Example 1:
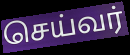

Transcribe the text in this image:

செய்வர்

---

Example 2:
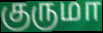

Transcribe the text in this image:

குருமா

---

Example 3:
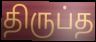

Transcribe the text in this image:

திருப்த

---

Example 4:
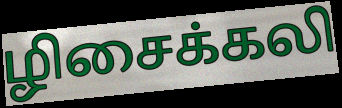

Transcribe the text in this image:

ழிசைக்கலி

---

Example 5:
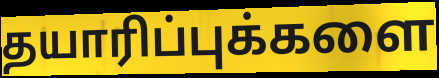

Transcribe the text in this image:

தயாரிப்புக்களை